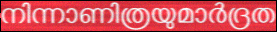
നിന്നാണിത്രയുമാർദ്രത